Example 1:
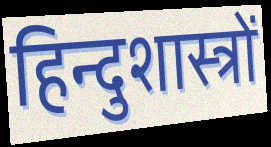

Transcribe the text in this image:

हिन्दुशास्त्रों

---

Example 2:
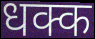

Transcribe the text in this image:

धक्क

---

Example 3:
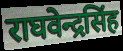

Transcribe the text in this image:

राघवेन्द्रसिंह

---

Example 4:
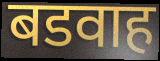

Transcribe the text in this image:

बडवाह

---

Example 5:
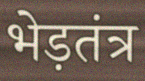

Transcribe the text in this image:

भेड़तंत्र